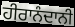
ਹੀਰਾਨੰਦਾਨੀ